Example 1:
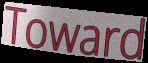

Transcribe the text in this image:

Toward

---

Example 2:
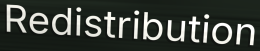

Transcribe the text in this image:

Redistribution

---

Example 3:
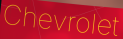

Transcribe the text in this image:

Chevrolet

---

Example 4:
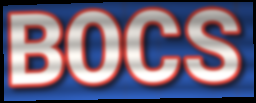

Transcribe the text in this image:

BOCS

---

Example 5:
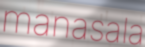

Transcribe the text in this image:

manasala